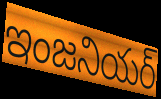
ఇంజనియర్